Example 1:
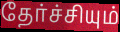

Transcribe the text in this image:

தேர்ச்சியும்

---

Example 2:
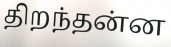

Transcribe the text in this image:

திறந்தன்ன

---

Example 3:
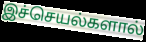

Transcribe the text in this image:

இச்செயல்களால்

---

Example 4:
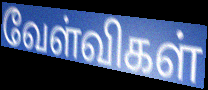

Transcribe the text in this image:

வேள்விகள்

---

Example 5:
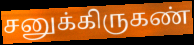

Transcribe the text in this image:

சனுக்கிருகண்